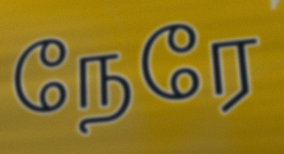
நேரே